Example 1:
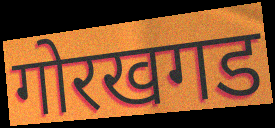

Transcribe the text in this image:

गोरखगड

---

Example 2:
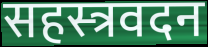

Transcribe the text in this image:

सहस्त्रवदन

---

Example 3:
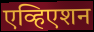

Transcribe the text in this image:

एव्हिएशन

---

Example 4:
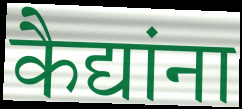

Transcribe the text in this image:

कैद्यांना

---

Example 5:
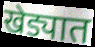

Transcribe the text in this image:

खेड्यात